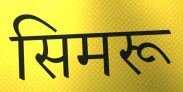
सिमरू